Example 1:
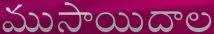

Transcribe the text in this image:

ముసాయిదాల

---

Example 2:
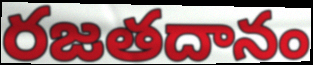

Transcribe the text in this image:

రజతదానం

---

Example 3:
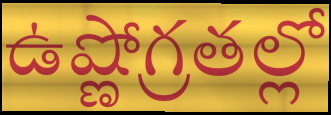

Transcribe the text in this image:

ఉష్ణోగ్రతల్లో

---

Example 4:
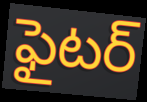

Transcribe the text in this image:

ఫైటర్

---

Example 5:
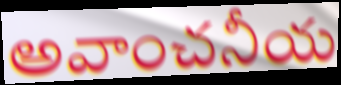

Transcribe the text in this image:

అవాంచనీయ